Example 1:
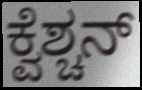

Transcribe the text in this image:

ಕ್ವೆಶ್ಚನ್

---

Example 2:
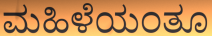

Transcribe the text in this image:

ಮಹಿಳೆಯಂತೂ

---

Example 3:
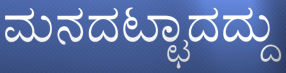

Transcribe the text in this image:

ಮನದಟ್ಟಾದದ್ದು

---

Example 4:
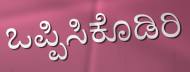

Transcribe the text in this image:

ಒಪ್ಪಿಸಿಕೊಡಿರಿ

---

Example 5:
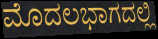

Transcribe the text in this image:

ಮೊದಲಭಾಗದಲ್ಲಿ